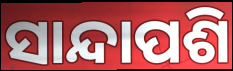
ସାନ୍ଦାପଶି